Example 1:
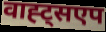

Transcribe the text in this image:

वाह्ट्सएप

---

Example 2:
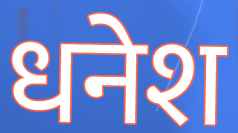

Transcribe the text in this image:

धनेश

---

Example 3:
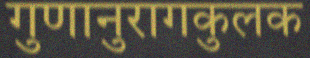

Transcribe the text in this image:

गुणानुरागकुलक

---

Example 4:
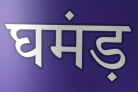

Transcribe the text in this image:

घमंड़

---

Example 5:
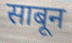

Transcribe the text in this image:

साबून